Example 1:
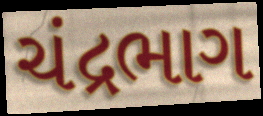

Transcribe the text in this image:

ચંદ્રભાગ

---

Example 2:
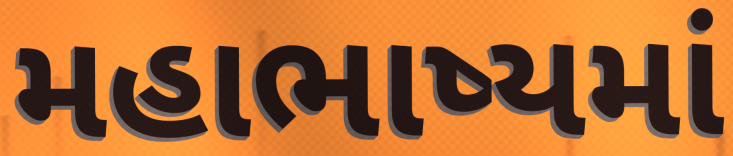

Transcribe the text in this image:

મહાભાષ્યમાં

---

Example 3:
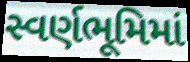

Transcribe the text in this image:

સ્વર્ણભૂમિમાં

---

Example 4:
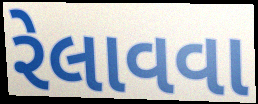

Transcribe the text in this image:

રેલાવવા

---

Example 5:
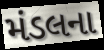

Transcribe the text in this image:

મંડલના